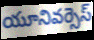
యూనివర్సెస్